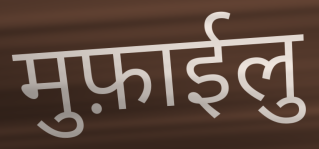
मुफ़ाईलु